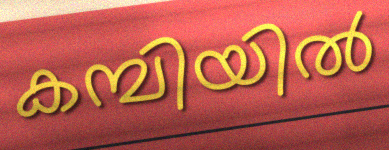
കമ്പിയിൽ